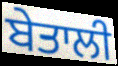
ਬੇਤਾਲੀ